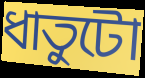
ধাতুটো